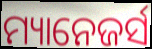
ମ୍ୟାନେଜର୍ସ